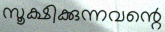
സൂക്ഷിക്കുന്നവന്റെ